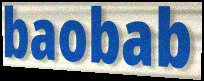
baobab